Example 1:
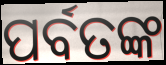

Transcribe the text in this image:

ପର୍ବତଙ୍କ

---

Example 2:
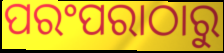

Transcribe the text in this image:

ପରଂପରାଠାରୁ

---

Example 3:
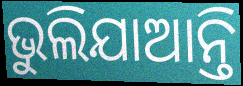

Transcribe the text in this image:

ଭୁଲିଯାଆନ୍ତି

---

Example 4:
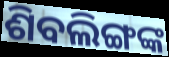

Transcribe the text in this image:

ଶିବଲିଙ୍ଗଙ୍କ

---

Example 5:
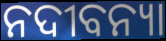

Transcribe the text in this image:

ନଦୀବନ୍ୟା